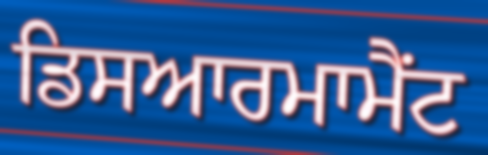
ਡਿਸਆਰਮਾਮੈਂਟ